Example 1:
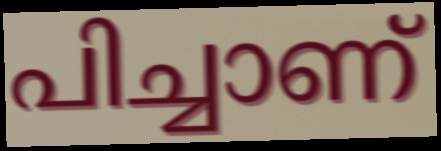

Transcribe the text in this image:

പിച്ചാണ്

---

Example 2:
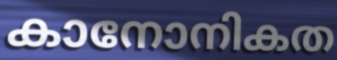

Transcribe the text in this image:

കാനോനികത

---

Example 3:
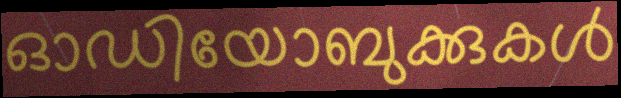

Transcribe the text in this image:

ഓഡിയോബുക്കുകൾ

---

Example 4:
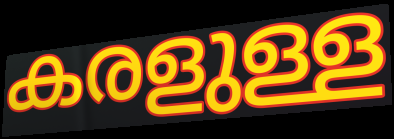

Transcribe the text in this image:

കരളുള്ള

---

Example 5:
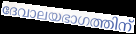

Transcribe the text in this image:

ദേവാലയഭാഗത്തിന്